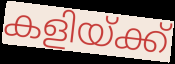
കളിയ്ക്ക്